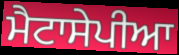
ਮੈਟਾਸੇਪੀਆ